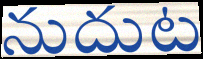
నుదుట